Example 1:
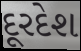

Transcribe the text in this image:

દૂરદેશ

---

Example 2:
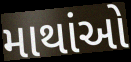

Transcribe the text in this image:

માથાંઓ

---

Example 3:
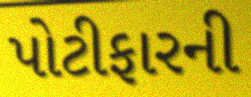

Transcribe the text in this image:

પોટીફારની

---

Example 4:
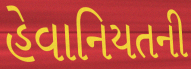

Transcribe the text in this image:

હેવાનિયતની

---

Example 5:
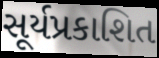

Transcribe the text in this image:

સૂર્યપ્રકાશિત